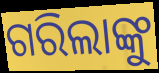
ଗରିଲାଙ୍କୁ